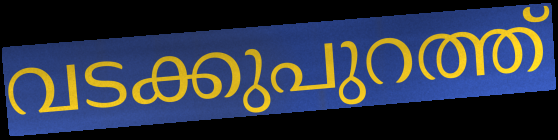
വടക്കുപുറത്ത്